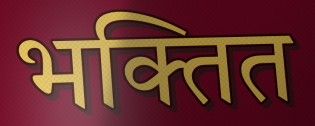
भक्तित